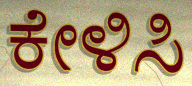
ಕೇಳಿಸಿ